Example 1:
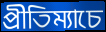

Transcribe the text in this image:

প্রীতিম্যাচে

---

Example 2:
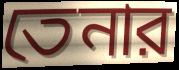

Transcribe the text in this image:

তেনার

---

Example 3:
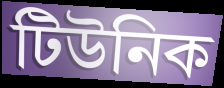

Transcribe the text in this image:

টিউনিক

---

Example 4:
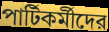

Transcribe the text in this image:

পার্টিকর্মীদের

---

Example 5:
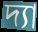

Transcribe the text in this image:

দ্যা